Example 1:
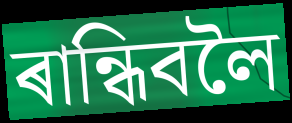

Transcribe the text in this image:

ৰান্ধিবলৈ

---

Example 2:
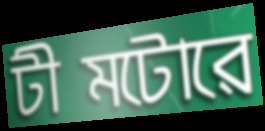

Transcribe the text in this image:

টীমটোৱে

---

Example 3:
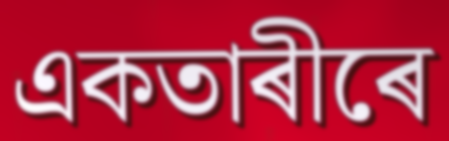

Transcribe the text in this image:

একতাৰীৰে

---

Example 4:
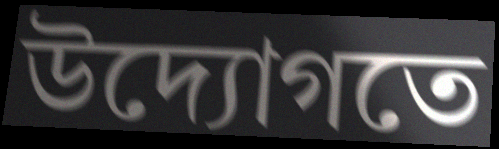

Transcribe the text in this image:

উদ্যোগতে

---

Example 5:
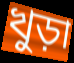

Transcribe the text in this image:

খুড়া